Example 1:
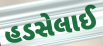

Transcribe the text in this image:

હડસેલાઈ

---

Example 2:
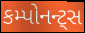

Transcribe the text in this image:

કમ્પોનન્ટ્સ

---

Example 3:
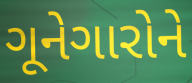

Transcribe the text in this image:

ગૂનેગારોને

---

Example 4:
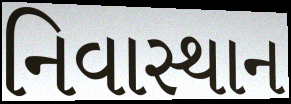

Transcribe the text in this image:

નિવાસ્થાન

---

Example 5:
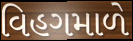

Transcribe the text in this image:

વિહગમાળે